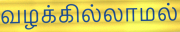
வழக்கில்லாமல்